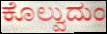
ಕೊಲ್ವುದುಂ